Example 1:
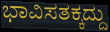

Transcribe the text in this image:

ಭಾವಿಸತಕ್ಕದ್ದು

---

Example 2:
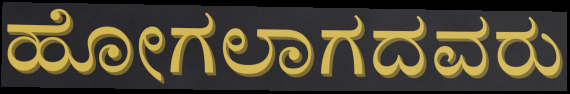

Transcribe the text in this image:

ಹೋಗಲಾಗದವರು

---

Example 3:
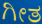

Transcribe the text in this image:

ಗೀತ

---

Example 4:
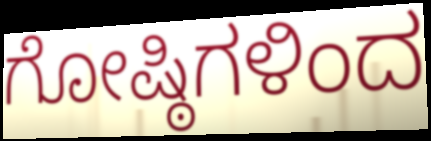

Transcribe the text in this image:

ಗೋಷ್ಠಿಗಳಿಂದ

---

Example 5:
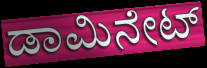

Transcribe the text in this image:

ಡಾಮಿನೇಟ್